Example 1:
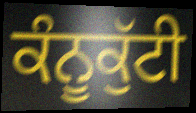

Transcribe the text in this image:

ਕੰਨੂਕੁੱਟੀ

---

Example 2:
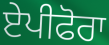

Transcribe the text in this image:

ਏਪੀਫੋਰਾ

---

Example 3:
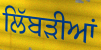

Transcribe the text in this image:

ਲਿੱਬੜੀਆਂ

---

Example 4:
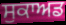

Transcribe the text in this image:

ਸੁਕਾਅਡ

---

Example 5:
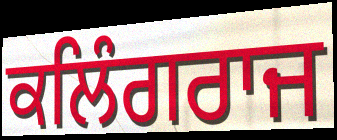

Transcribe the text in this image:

ਕਲਿੰਗਰਾਜ